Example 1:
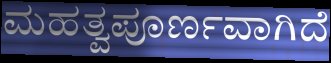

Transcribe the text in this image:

ಮಹತ್ವಪೂರ್ಣವಾಗಿದೆ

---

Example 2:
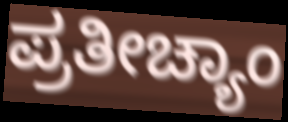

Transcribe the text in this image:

ಪ್ರತೀಚ್ಯಾಂ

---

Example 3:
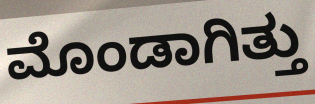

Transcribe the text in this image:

ಮೊಂಡಾಗಿತ್ತು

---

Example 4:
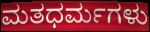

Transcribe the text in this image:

ಮತಧರ್ಮಗಳು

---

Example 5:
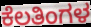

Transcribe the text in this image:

ಕೆಲತಿಂಗಳ